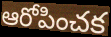
ఆరోపించక